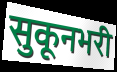
सुकूनभरी